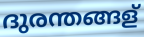
ദുരന്തങ്ങള്